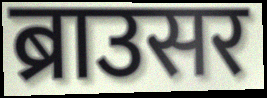
ब्राउसर